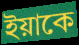
ইয়াকে